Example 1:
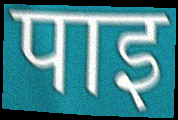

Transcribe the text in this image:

पाइ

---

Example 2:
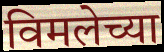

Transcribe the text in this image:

विमलेच्या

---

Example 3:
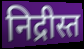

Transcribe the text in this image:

निद्रीस्त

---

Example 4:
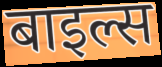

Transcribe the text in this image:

बाइल्स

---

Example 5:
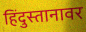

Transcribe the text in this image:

हिंदुस्तानावर